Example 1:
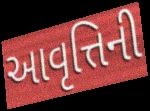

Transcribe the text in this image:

આવૃત્તિની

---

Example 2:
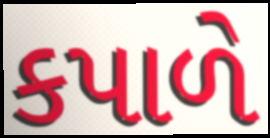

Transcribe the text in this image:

કપાળે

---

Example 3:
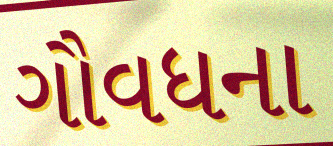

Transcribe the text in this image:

ગૌવધના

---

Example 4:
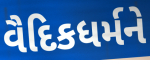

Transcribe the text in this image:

વૈદિકધર્મને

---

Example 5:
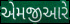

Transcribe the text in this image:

એમજીઆરે